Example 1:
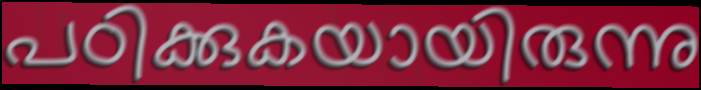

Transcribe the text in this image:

പഠിക്കുകയായിരുന്നു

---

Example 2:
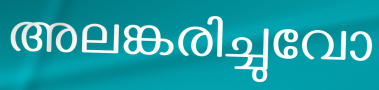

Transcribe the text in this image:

അലങ്കരിച്ചുവോ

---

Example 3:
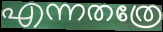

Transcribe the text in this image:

എന്നതത്രേ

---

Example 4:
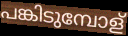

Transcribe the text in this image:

പങ്കിടുമ്പോള്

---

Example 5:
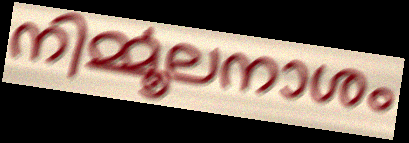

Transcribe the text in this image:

നിൎമ്മൂലനാശം